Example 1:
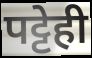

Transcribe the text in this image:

पट्टेही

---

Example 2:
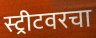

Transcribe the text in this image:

स्ट्रीटवरचा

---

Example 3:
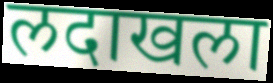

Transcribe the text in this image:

लदाखला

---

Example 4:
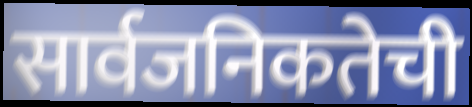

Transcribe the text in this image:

सार्वजनिकतेची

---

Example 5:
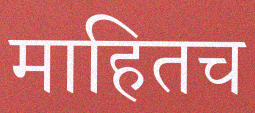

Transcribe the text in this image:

माहितच